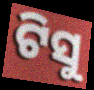
ଟିସୁ